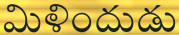
మిళిందుడు